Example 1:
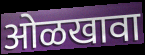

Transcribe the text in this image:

ओळखावा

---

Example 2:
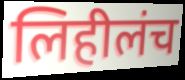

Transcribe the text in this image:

लिहीलंच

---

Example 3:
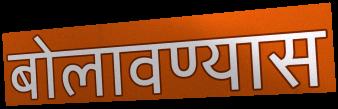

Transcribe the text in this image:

बोलावण्यास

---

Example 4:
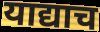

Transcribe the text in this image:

याद्याच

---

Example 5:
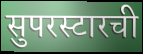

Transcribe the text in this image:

सुपरस्टारची